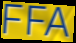
FFA